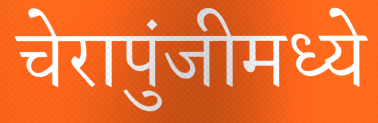
चेरापुंजीमध्ये